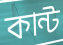
কান্ট